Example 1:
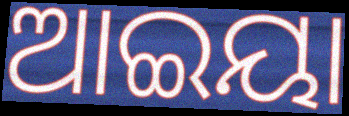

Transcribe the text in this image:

ଆଇୟା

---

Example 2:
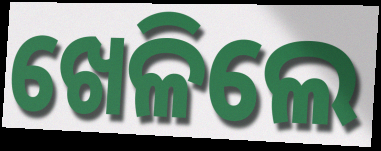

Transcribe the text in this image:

ଖେଳିଲେ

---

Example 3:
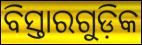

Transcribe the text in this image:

ବିସ୍ତାରଗୁଡ଼ିକ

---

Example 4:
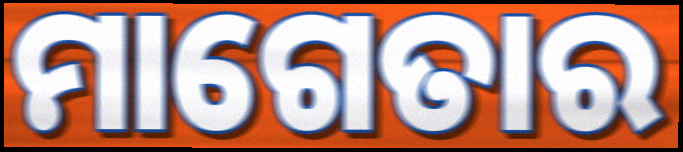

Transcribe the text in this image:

ମାଗେତାର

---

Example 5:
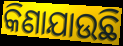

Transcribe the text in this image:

କିଣାଯାଉଛି